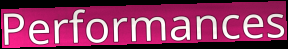
Performances